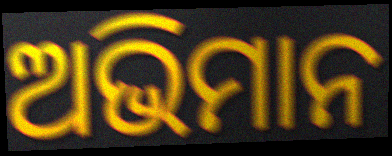
ଅଭିମାନ